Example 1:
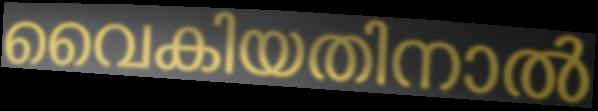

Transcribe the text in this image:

വൈകിയതിനാൽ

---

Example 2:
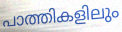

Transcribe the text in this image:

പാത്തികളിലും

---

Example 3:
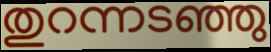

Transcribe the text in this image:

തുറന്നടഞ്ഞു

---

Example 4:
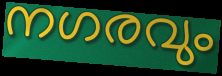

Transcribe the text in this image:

നഗരവും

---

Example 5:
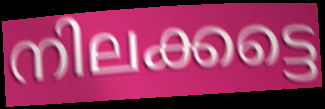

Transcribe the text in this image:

നിലക്കട്ടെ